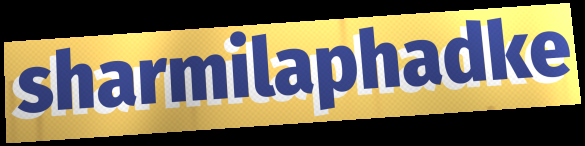
sharmilaphadke